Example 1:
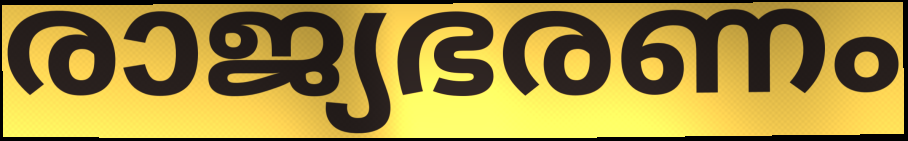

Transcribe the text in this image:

രാജ്യഭരണം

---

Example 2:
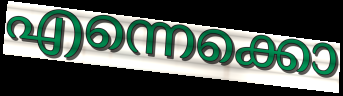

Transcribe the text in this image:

എന്നെക്കൊ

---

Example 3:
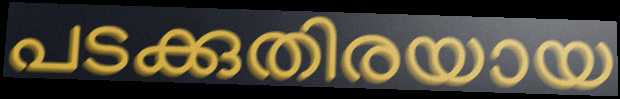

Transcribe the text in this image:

പടക്കുതിരയായ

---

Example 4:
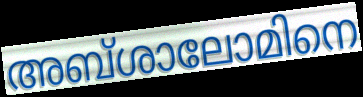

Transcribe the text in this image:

അബ്ശാലോമിനെ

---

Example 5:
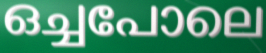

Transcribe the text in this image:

ഒച്ചപോലെ